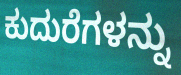
ಕುದುರೆಗಳನ್ನು